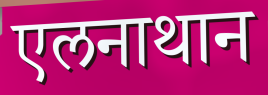
एलनाथान